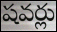
షవర్లు